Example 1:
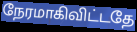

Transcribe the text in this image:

நேரமாகிவிட்டதே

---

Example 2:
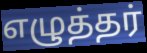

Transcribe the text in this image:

எழுத்தர்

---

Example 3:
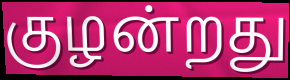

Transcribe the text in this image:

குழன்றது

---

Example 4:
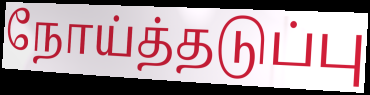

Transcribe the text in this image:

நோய்த்தடுப்பு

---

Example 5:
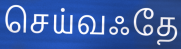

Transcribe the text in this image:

செய்வஃதே